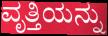
ವೃತ್ತಿಯನ್ನು